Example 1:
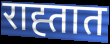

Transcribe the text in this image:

राह्तात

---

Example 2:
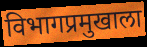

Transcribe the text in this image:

विभागप्रमुखाला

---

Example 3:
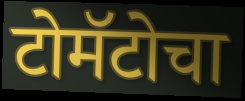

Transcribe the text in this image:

टोमॅटोचा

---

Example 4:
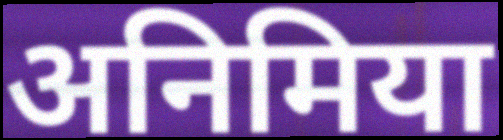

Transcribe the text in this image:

अनिमिया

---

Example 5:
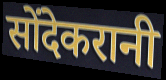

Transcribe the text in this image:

सोंदेकरानी